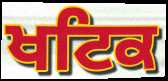
ਖਟਿਕ